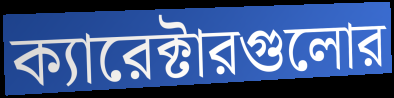
ক্যারেক্টারগুলোর